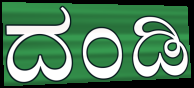
ದಂಡಿ